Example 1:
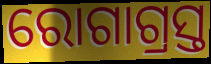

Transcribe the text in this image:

ରୋଗାଗ୍ରସ୍ତ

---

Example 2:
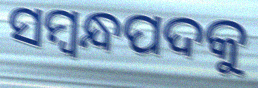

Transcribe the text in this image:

ସମ୍ବନ୍ଧପଦକୁ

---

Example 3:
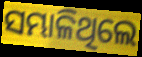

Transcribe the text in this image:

ସମ୍ଭାଳିଥିଲେ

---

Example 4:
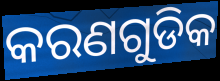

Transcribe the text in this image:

କରଣଗୁଡିକ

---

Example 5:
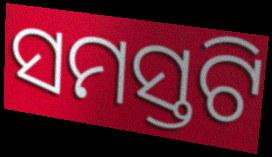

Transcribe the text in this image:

ସମସ୍ତଟି